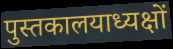
पुस्तकालयाध्यक्षों